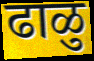
ढाळु